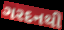
ગરદનથી